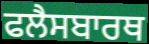
ਫਲੈਸਬਾਰਥ